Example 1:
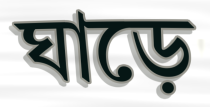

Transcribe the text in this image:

ঘাড়ে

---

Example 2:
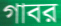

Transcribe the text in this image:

গাবর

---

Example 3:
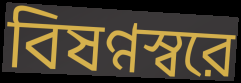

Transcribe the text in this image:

বিষণ্ণস্বরে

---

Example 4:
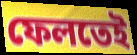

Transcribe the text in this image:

ফেলতেই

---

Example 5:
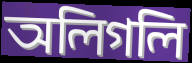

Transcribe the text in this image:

অলিগলি